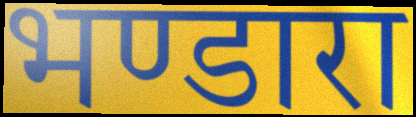
भण्डारा